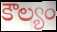
కౌల్యం